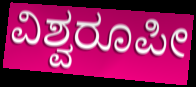
ವಿಶ್ವರೂಪೀ